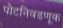
पोटनिवडणूक